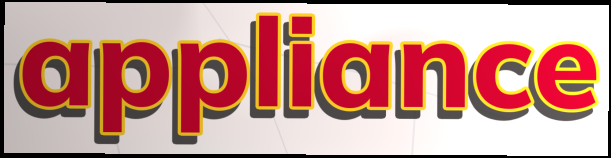
appliance